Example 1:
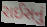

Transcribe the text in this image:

રાઈસનું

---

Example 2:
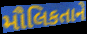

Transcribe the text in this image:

મૌલિકતાને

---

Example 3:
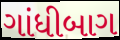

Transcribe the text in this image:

ગાંધીબાગ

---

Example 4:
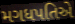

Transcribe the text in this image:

મગધપતિએ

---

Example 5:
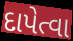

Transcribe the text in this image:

દાપેત્વા